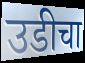
उडीचा